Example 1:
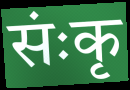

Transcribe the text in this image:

संःकृ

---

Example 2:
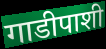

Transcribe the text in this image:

गाडीपाशी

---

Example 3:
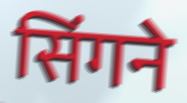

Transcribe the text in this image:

सिंगने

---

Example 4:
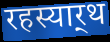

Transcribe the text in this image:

रहस्यार्थ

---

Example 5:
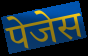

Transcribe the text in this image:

पेजेस